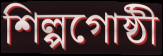
শিল্পগোষ্ঠী